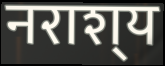
नराश्य